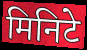
मिनिटे